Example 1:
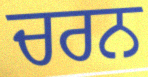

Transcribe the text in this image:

ਚਰਨ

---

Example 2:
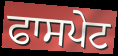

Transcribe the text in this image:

ਫਾਸਪੇਟ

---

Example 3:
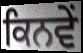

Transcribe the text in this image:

ਕਿਨਵੇਂ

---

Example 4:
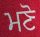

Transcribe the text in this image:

ਮਣੋ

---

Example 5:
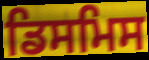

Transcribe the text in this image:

ਡਿਸਮਿਸ